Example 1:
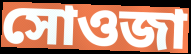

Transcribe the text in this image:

সোওজা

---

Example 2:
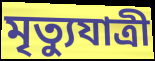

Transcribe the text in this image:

মৃত্যুযাত্রী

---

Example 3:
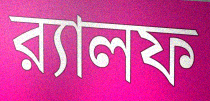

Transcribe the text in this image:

র‍্যালফ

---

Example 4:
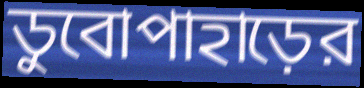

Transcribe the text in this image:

ডুবোপাহাড়ের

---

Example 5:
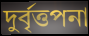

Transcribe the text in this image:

দুর্বৃত্তপনা